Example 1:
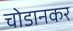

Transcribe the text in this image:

चोडानकर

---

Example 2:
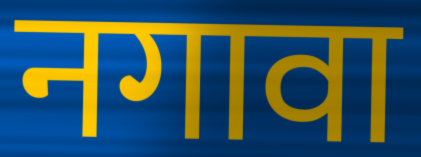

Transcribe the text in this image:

नगावा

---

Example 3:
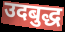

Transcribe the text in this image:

उदबुद्ध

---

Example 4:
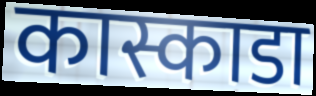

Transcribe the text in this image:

कास्काडा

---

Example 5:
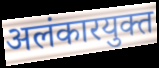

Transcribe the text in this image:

अलंकारयुक्त